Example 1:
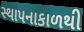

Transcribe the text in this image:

સ્થાપનાકાળથી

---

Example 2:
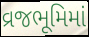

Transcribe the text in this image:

વ્રજભૂમિમાં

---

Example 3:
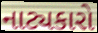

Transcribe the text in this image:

નાટ્યકારો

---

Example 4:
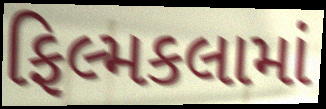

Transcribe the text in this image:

ફિલ્મકલામાં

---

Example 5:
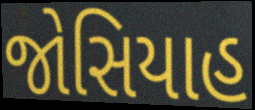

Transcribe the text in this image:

જોસિયાહ